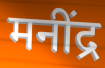
मनींद्र